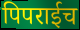
पिपराईच